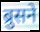
ब्रुसने